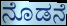
ನೊಡನೆ